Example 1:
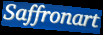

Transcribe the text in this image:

Saffronart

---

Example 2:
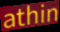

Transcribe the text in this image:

athin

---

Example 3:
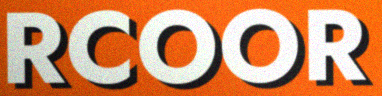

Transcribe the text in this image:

RCOOR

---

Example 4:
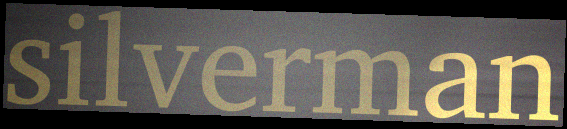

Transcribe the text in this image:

silverman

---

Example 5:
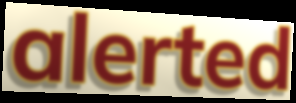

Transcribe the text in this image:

alerted